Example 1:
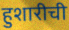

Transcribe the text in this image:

हुशारीची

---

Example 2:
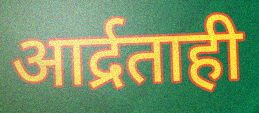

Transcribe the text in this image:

आर्द्रताही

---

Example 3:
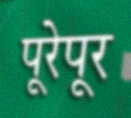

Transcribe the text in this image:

पूरेपूर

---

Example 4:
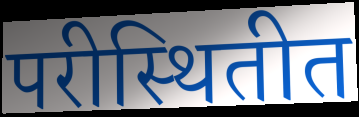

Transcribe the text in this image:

परीस्थितीत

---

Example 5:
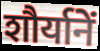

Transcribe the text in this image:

शौर्यानें